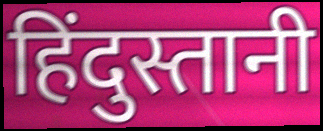
हिंदुस्तानी